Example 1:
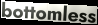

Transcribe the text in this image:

bottomless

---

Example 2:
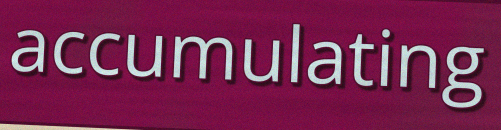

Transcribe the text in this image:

accumulating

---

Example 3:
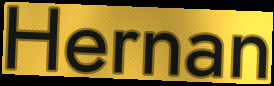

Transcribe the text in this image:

Hernan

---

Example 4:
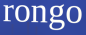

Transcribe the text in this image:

rongo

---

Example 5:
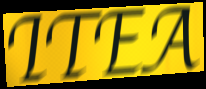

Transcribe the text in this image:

ITEA